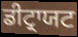
ਡੀਟ੍ਰਾਯਟ